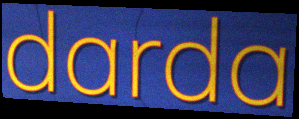
darda